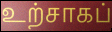
உற்சாகப்